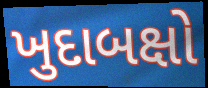
ખુદાબક્ષો